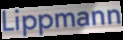
Lippmann